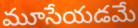
మూసేయడమే